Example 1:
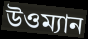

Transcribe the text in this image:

উওম্যান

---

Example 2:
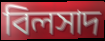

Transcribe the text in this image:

বিলসাদ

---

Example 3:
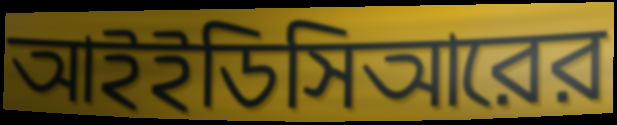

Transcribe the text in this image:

আইইডিসিআরের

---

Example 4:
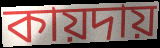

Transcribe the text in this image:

কায়দায়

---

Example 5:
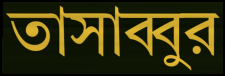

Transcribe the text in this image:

তাসাব্বুর